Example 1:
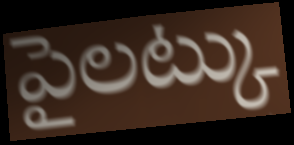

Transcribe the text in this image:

పైలట్కు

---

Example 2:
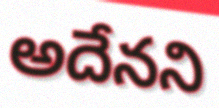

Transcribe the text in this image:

అదేనని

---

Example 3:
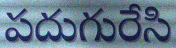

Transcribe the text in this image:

పదుగురేసి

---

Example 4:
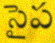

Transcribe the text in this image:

సైప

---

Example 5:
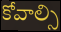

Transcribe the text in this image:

కోవాల్సి